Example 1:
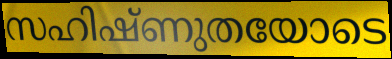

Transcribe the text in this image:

സഹിഷ്ണുതയോടെ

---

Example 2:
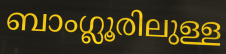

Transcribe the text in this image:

ബാംഗ്ലൂരിലുള്ള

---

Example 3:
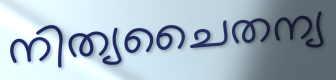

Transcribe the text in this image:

നിത്യചൈതന്യ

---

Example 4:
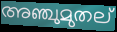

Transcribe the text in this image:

അഞ്ചുമുതല്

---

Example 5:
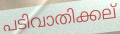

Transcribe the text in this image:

പടിവാതിക്കല്